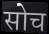
सोच